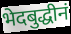
भेदबुद्धीनं